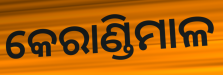
କେରାଣ୍ଡିମାଳ